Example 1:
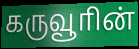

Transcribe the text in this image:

கருவூரின்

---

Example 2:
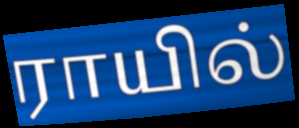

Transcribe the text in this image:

ராயில்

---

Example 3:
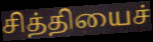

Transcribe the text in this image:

சித்தியைச்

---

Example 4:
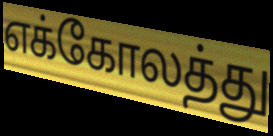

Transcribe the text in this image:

எக்கோலத்து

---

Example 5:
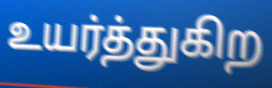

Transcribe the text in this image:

உயர்த்துகிற